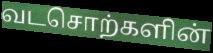
வடசொற்களின்